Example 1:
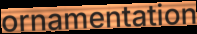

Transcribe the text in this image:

ornamentation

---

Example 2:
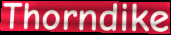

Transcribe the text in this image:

Thorndike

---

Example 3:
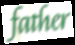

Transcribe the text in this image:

father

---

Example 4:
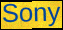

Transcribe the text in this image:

Sony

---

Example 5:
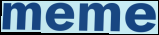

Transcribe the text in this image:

meme